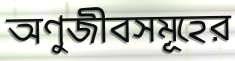
অণুজীবসমূহের